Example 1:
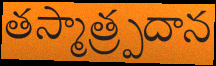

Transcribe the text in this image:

తస్మాత్ర్పదాన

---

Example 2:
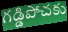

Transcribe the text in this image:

గడ్డిపోచకు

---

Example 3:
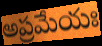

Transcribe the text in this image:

అప్రమేయః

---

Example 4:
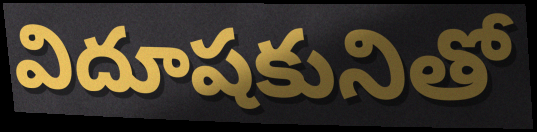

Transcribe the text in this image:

విదూషకునితో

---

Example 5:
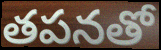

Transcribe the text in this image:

తపనతో